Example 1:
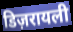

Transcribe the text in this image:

डिज़रायली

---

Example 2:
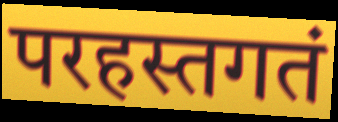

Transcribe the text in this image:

परहस्तगतं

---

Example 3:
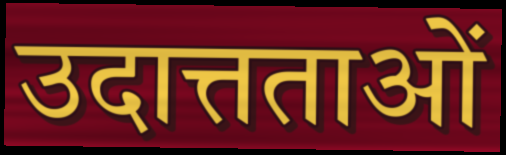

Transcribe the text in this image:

उदात्तताओं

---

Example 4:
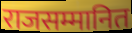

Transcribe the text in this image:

राजसम्मानित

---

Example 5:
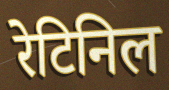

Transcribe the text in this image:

रेटिनिल